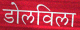
डोलविला